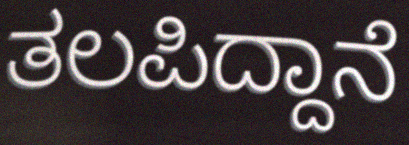
ತಲಪಿದ್ದಾನೆ